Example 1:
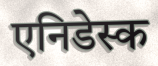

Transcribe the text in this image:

एनिडेस्क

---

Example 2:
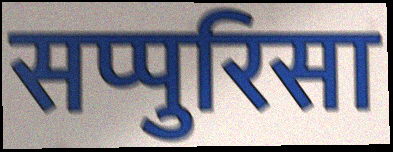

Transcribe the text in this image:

सप्पुरिसा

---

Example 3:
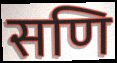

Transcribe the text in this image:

सणि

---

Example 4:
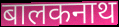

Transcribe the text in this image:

बालकनाथ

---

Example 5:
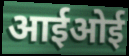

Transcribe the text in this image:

आईओई